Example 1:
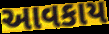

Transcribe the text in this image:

આવકાય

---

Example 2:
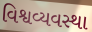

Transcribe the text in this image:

વિશ્વવ્યવસ્થા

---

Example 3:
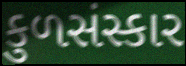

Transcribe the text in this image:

કુળસંસ્કાર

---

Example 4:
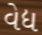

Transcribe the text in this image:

વેદ્ય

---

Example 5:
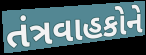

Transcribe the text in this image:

તંત્રવાહકોને